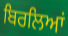
ਬਿਰਲਿਆਂ